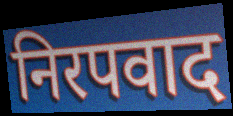
निरपवाद